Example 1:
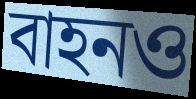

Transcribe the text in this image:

বাহনও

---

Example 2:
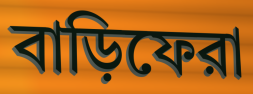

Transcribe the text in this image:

বাড়িফেরা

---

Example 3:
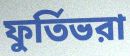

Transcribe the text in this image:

ফুর্তিভরা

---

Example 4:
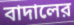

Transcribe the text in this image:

বাদালের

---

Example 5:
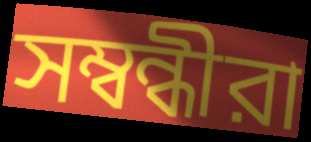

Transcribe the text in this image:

সম্বন্ধীরা